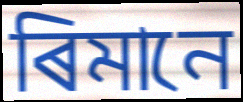
ৰিমানে